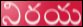
నిరయ